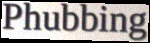
Phubbing